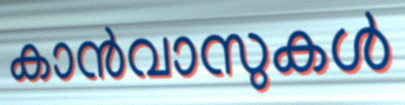
കാൻവാസുകൾ